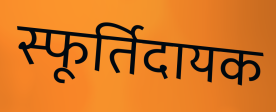
स्फूर्तिदायक